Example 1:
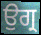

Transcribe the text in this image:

ਉਗ੍ਰ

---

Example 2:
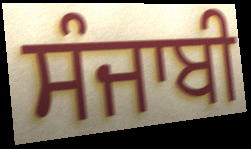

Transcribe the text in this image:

ਸੰਜਾਬੀ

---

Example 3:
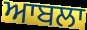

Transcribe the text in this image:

ਆਬਲਾ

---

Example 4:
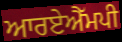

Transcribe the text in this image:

ਆਰਏਐੱਮਪੀ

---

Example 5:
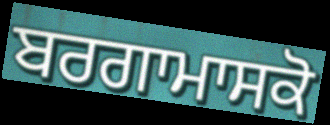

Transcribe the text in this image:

ਬਰਗਾਮਾਸਕੋ